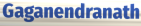
Gaganendranath